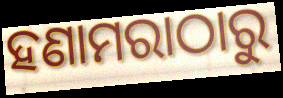
ହଣାମରାଠାରୁ